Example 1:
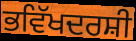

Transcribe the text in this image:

ਭਵਿੱਖਦਰਸ਼ੀ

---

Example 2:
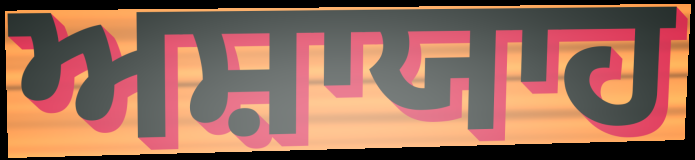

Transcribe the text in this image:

ਅਸ਼ਾਯਾਹ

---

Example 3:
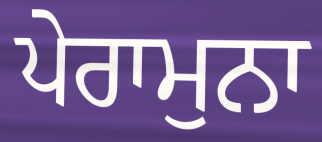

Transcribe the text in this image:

ਪੇਰਾਮੁਨਾ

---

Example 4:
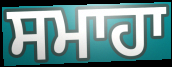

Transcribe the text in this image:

ਸਮਾਹਾ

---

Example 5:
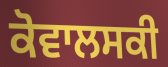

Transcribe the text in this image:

ਕੋਵਾਲਸਕੀ